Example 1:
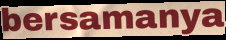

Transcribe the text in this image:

bersamanya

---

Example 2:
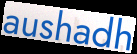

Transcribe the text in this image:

aushadh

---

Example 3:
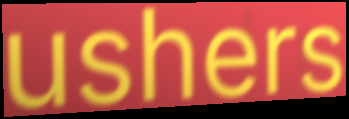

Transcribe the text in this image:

ushers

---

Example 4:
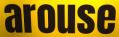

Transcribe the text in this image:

arouse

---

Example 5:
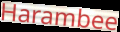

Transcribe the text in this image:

Harambee